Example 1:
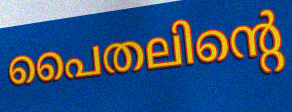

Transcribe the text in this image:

പൈതലിന്റെ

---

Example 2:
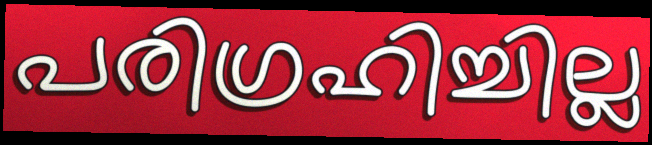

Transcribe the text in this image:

പരിഗ്രഹിച്ചില്ല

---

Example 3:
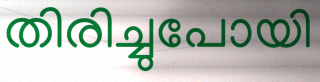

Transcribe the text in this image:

തിരിച്ചുപോയി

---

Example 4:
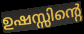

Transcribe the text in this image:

ഉഷസ്സിന്റെ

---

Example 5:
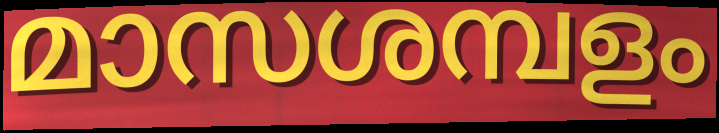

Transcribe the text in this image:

മാസശമ്പളം